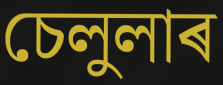
চেলুলাৰ